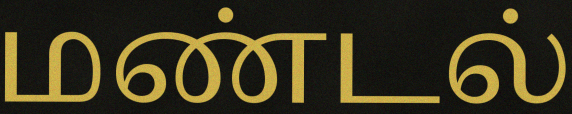
மண்டல்